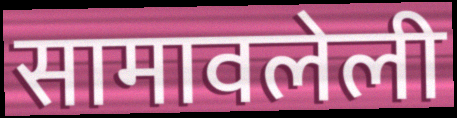
सामावलेली